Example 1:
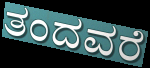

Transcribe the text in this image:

ತಂದವರೆ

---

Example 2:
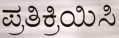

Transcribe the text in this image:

ಪ್ರತಿಕ್ರಿಯಿಸಿ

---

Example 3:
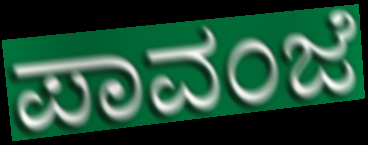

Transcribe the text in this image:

ಪಾವಂಜೆ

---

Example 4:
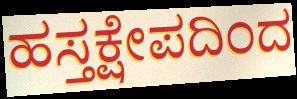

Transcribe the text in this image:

ಹಸ್ತಕ್ಷೇಪದಿಂದ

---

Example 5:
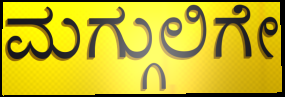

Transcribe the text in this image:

ಮಗ್ಗುಲಿಗೇ